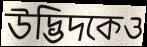
উদ্ভিদকেও